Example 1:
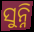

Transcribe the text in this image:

ସୁନ୍ନି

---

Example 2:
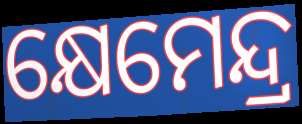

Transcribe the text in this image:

କ୍ଷେମେନ୍ଦ୍ର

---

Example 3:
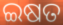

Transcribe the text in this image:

ଇଷତ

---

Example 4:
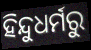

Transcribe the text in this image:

ହିନ୍ଦୁଧର୍ମରୁ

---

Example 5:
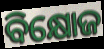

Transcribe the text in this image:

ବିକ୍ଷୋଜ